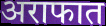
अराफात